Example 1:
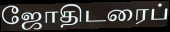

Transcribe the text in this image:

ஜோதிடரைப்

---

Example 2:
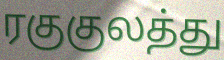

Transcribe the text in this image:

ரகுகுலத்து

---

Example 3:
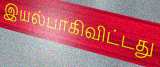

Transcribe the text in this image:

இயல்பாகிவிட்டது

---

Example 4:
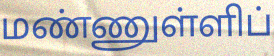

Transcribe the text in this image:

மண்ணுள்ளிப்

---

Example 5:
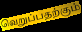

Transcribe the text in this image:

வெறுப்பதற்கும்